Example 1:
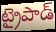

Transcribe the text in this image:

ట్రైపాడ్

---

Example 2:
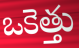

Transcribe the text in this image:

ఒకెత్తు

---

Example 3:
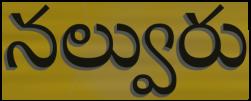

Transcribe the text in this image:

నల్వురు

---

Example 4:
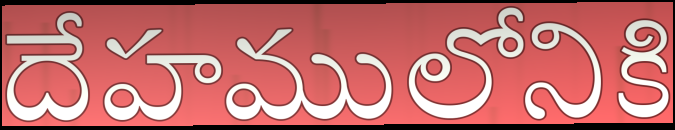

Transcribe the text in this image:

దేహములోనికి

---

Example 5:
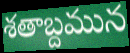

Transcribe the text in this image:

శతాబ్దమున